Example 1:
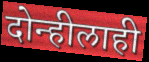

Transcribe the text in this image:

दोन्हीलाही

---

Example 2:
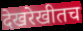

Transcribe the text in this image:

देखरेखीतच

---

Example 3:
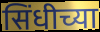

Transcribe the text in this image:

सिंधीच्या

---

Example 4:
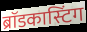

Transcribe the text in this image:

ब्रॉडकास्टिंग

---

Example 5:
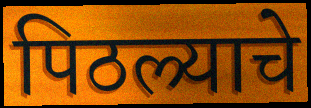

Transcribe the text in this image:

पिठल्याचे